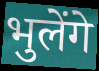
भुलेंगे